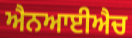
ਐਨਆਈਐਚ